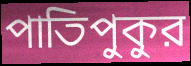
পাতিপুকুর